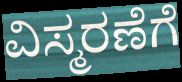
ವಿಸ್ಮರಣೆಗೆ